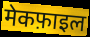
मेकफ़ाइल